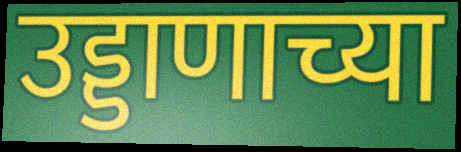
उड्डाणाच्या